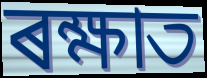
ৰক্ষাত